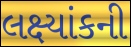
લક્ષ્યાંકની